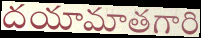
దయామాతగారి